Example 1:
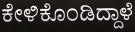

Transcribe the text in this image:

ಕೇಳಿಕೊಂಡಿದ್ದಾಳೆ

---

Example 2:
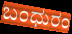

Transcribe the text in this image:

ಬಂಧುರಂ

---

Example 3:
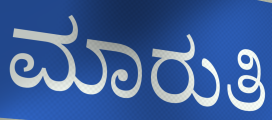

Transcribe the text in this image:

ಮಾರುತಿ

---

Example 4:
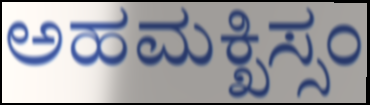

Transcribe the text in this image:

ಅಹಮಕ್ಖಿಸ್ಸಂ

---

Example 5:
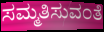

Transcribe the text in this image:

ಸಮ್ಮತಿಸುವಂತೆ